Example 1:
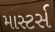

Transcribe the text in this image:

માસ્ટર્સ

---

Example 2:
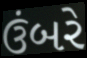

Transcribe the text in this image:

ઉંબરે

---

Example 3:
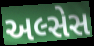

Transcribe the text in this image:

અલ્સેસ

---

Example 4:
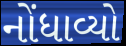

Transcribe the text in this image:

નોંધાવ્યો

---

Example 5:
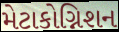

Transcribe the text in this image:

મેટાકોગ્નિશન